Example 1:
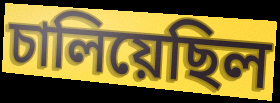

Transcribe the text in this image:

চালিয়েছিল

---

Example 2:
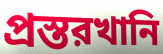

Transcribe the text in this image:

প্রস্তরখানি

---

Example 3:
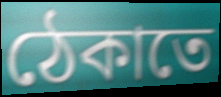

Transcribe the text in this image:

ঠেকাতে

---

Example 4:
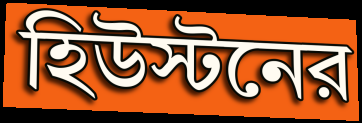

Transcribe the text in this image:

হিউস্টনের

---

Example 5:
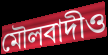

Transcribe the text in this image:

মৌলবাদীও